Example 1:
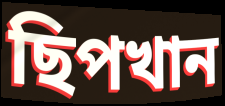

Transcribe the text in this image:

ছিপখান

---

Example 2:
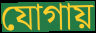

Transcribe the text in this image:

যোগায়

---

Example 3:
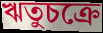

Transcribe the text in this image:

ঋতুচক্রে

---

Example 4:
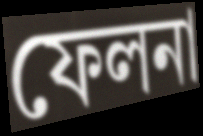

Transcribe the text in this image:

ফেলনা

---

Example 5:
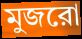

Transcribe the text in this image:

মুজরো